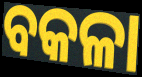
ବକଳା